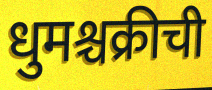
धुमश्चक्रीची